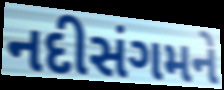
નદીસંગમને